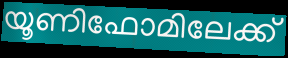
യൂണിഫോമിലേക്ക്